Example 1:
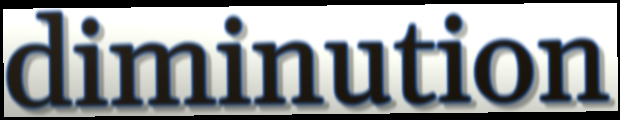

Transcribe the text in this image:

diminution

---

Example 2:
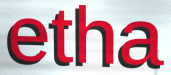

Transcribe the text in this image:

etha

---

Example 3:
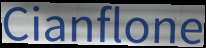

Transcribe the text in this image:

Cianflone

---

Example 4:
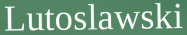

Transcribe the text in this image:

Lutoslawski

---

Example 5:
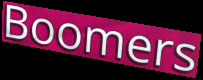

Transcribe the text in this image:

Boomers